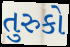
તુરુકો